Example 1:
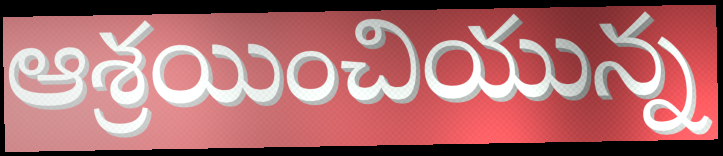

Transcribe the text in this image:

ఆశ్రయించియున్న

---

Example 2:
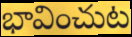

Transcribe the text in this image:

భావించుట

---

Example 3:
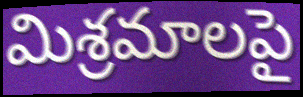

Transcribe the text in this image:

మిశ్రమాలపై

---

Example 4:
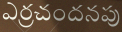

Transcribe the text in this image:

ఎర్రచందనపు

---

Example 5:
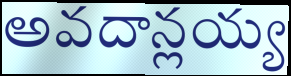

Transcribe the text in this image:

అవదాన్లయ్య